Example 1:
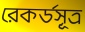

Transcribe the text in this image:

রেকর্ডসূত্র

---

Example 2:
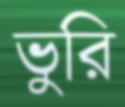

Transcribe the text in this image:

ভুরি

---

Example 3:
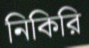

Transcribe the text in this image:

নিকিরি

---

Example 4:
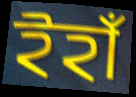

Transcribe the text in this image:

ইহাঁ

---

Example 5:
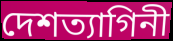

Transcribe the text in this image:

দেশত্যাগিনী